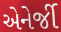
એનેર્જી